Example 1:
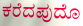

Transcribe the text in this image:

ಕರೆದಪುದೊ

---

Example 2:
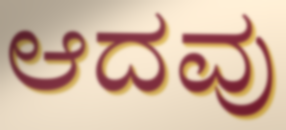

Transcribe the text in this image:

ಆದವು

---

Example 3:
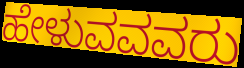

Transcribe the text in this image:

ಹೇಳುವವವರು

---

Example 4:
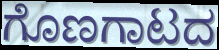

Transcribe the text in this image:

ಗೊಣಗಾಟದ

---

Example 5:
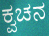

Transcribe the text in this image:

ಕ್ವಚನ